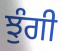
ਝੁੰਗੀ